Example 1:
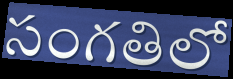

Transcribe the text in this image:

సంగతిలో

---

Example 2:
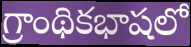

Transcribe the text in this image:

గ్రాంథికభాషలో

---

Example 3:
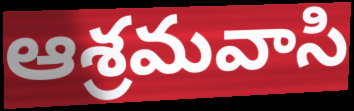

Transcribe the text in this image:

ఆశ్రమవాసి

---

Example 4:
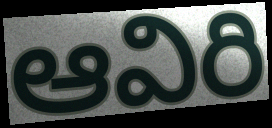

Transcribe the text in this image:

ఆవిరి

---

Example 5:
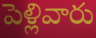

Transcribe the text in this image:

పెళ్లివారు